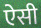
ऐसी